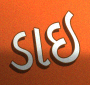
ડાઇ